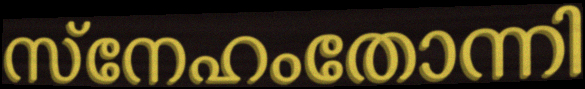
സ്‌നേഹംതോന്നി